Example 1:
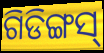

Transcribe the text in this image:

ଗିଡିଙ୍ଗସ୍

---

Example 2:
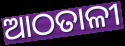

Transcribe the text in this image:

ଆଠତାଳୀ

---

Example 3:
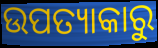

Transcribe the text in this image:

ଉପତ୍ୟାକାରୁ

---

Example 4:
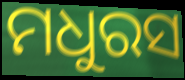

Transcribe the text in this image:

ମଧୁରସ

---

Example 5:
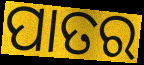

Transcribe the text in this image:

ପାତର